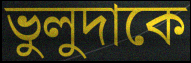
ভুলুদাকে